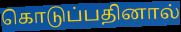
கொடுப்பதினால்